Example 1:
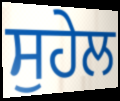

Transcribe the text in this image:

ਸੁਹੇਲ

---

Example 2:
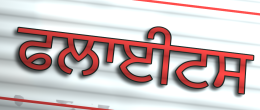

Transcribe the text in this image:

ਫਲਾਈਟਸ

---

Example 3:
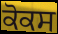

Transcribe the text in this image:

ਕੋਕਸ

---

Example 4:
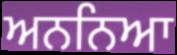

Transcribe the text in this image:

ਅਨਨਿਆ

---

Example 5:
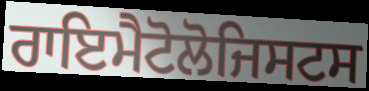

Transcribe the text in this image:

ਰਾਇਮੈਟੋਲੋਜਿਸਟਸ